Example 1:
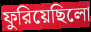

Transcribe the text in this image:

ফুরিয়েছিলো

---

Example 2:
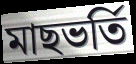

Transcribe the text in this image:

মাছভর্তি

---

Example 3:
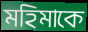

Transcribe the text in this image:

মহিমাকে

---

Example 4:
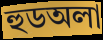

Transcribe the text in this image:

হুডঅলা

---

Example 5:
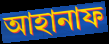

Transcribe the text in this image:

আহানাফ